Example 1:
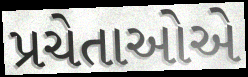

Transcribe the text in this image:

પ્રચેતાઓએ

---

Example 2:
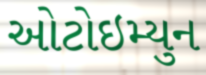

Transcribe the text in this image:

ઓટોઇમ્યુન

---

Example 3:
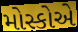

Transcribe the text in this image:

મોસ્કોએ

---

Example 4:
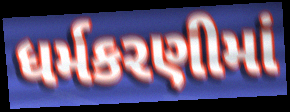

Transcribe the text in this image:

ધર્મકરણીમાં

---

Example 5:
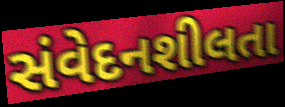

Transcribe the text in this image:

સંવેદનશીલતા